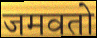
जमवतो